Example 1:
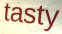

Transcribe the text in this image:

tasty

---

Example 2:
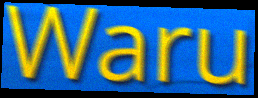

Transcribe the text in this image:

Waru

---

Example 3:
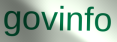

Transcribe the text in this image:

govinfo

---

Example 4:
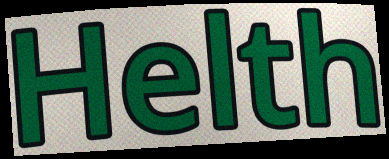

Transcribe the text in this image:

Helth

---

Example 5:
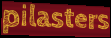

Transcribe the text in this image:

pilasters